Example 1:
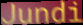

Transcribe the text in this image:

Jundi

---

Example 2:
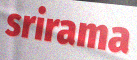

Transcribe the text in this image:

srirama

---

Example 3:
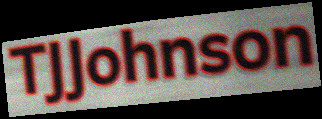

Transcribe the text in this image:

TJJohnson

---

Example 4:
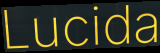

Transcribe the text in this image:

Lucida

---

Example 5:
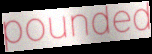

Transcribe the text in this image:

pounded